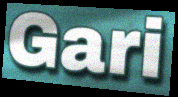
Gari